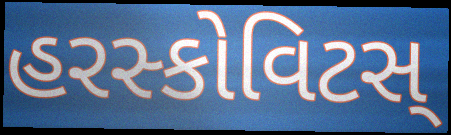
હરસ્કોવિટસ્